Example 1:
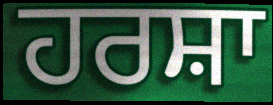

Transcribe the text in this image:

ਹਰਸ਼ਾ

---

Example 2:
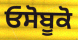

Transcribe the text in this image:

ਓਸੋਬੂਕੋ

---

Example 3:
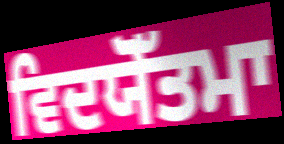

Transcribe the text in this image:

ਵਿਦਯੋੱਤਮਾ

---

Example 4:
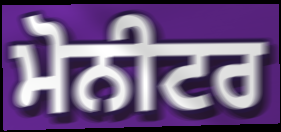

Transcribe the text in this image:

ਮੋਨੀਟਰ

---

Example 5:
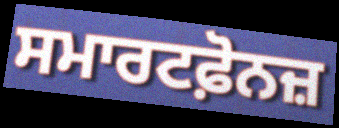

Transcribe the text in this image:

ਸਮਾਰਟਫ਼ੋਨਜ਼